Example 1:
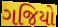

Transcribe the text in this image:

ગજિયો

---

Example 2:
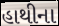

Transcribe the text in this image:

હાથીના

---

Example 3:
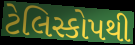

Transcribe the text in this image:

ટેલિસ્કોપથી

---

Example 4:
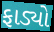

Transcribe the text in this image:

ફાડ્યો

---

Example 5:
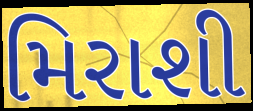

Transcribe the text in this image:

મિરાશી